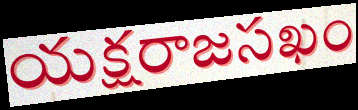
యక్షరాజసఖం